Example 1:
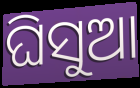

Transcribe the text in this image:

ଘିସୁଆ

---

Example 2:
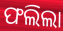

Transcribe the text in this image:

ଫଲିଲା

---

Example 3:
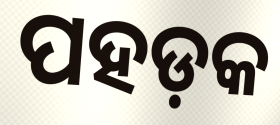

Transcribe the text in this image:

ପହଡ଼କ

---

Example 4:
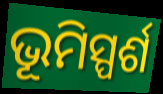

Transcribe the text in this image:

ଭୂମିସ୍ପର୍ଶ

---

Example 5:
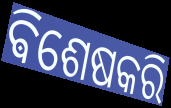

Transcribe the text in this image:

ଵିଶେଷକରି